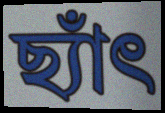
ছ্যাঁৎ